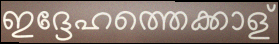
ഇദ്ദേഹത്തെക്കാള്